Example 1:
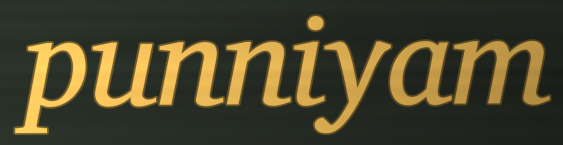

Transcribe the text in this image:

punniyam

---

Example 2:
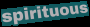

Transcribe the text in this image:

spirituous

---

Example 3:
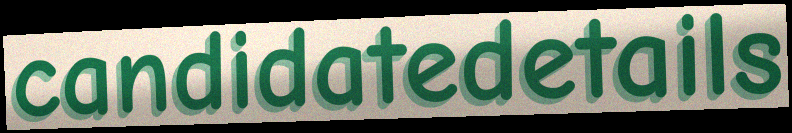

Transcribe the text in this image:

candidatedetails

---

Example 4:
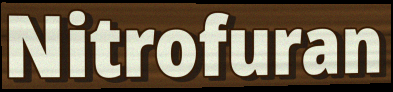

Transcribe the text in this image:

Nitrofuran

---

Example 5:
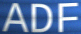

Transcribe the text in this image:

ADF